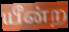
யீன்ற